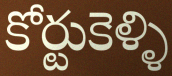
కోర్టుకెళ్ళి